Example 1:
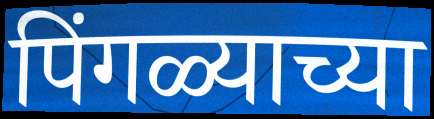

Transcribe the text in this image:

पिंगळ्याच्या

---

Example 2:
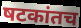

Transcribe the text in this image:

षटकांतच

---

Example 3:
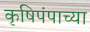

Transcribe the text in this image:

कृषिपंपाच्या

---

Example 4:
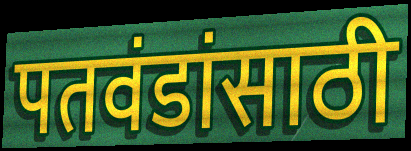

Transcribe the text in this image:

पतवंडांसाठी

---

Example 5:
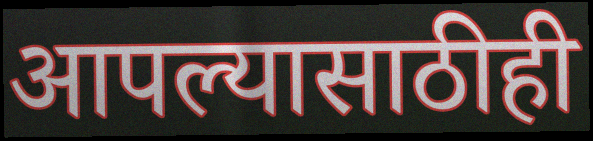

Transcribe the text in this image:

आपल्यासाठीही